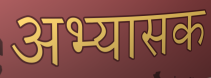
अभ्यासक